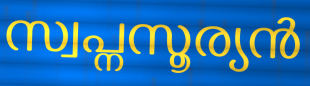
സ്വപ്നസൂര്യൻ